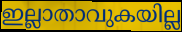
ഇല്ലാതാവുകയില്ല